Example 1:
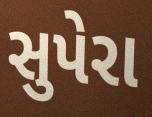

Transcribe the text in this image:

સુપેરા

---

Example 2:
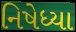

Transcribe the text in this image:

નિષેધ્યા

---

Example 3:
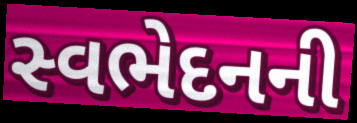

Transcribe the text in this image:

સ્વભેદનની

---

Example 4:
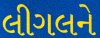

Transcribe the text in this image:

લીગલને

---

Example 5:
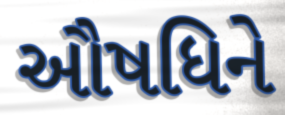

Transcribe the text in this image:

ઔષધિને